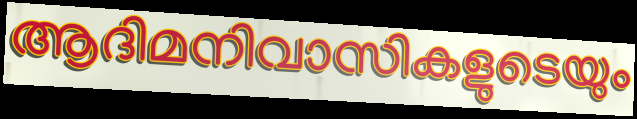
ആദിമനിവാസികളുടെയും